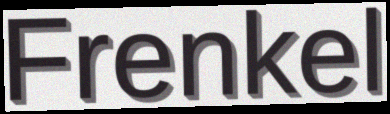
Frenkel